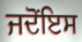
ਜਦੋਂਇਸ